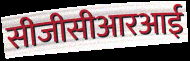
सीजीसीआरआई